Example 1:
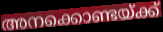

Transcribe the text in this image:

അനക്കൊണ്ടയ്ക്ക്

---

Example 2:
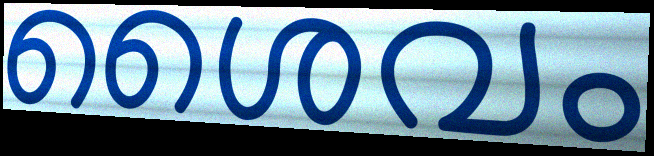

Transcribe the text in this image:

ശൈവം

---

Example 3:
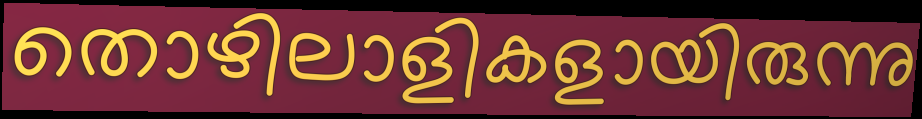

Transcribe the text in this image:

തൊഴിലാളികളായിരുന്നു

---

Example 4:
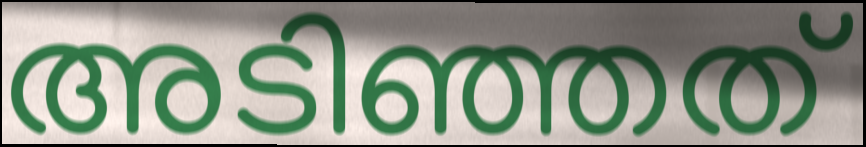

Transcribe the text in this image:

അടിഞ്ഞത്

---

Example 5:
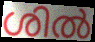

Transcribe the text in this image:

ശിൽ